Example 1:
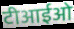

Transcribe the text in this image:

टीआईओ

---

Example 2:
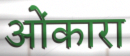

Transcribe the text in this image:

ओंकारा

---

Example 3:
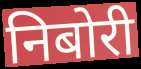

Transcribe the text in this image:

निबोरी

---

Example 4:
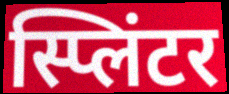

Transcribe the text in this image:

स्प्लिंटर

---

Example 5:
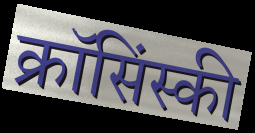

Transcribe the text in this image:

क्रॉसिंस्की